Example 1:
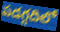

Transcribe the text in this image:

పడగ్గదిలో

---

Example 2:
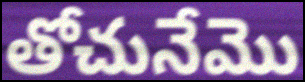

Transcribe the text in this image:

తోచునేమొ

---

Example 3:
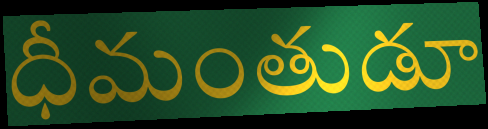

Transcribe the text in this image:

ధీమంతుడూ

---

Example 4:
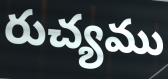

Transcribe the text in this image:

రుచ్యము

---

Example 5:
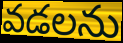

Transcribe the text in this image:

వడలను